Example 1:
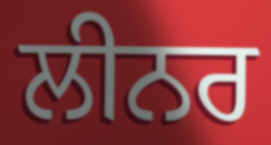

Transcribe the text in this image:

ਲੀਨਰ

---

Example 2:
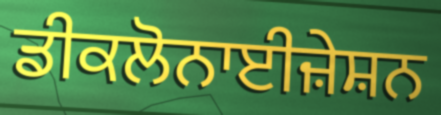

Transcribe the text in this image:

ਡੀਕਲੋਨਾਈਜ਼ੇਸ਼ਨ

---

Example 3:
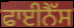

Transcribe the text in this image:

ਫਾਈਨੈੱਸ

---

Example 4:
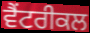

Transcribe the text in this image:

ਵੈਂਟਰੀਕਲ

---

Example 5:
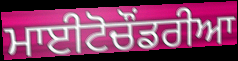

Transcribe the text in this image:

ਮਾਈਟੋਚੌਂਡਰੀਆ